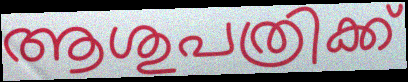
ആശുപത്രിക്ക്